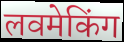
लवमेकिंग